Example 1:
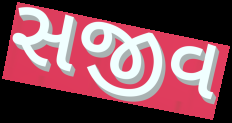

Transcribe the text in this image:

સજીવ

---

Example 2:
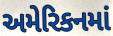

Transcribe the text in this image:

અમેરિકનમાં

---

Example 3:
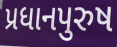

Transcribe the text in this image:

પ્રધાનપુરુષ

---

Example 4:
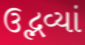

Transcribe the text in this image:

ઉદ્ભવ્યાં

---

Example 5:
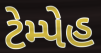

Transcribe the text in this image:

ટેમ્પેહ